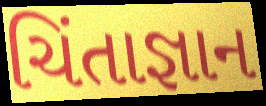
ચિંતાજ્ઞાન